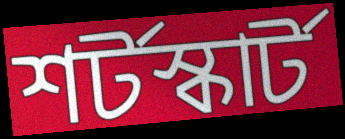
শর্টস্কার্ট